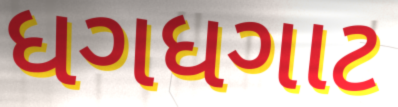
ધગધગાટ